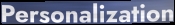
Personalization